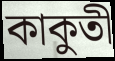
কাকুতী